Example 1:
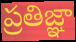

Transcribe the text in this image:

ప్రతిజ్ఞా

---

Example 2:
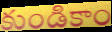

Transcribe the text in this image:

కుండికాం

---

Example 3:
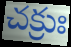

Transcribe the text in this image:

చక్రుః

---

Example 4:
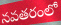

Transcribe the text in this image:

నవతరంలో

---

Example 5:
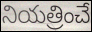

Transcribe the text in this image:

నియత్రించే